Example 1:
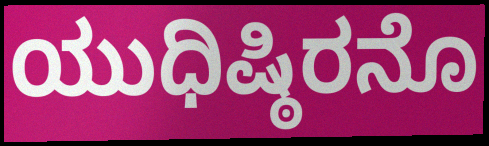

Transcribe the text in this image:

ಯುಧಿಷ್ಠಿರನೊ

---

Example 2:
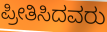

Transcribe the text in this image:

ಪ್ರೀತಿಸಿದವರು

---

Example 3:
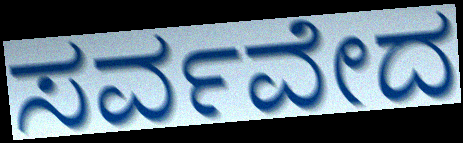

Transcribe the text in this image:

ಸರ್ವವೇದ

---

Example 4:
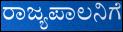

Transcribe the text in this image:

ರಾಜ್ಯಪಾಲನಿಗೆ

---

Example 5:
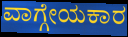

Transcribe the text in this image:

ವಾಗ್ಗೇಯಕಾರ